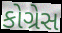
કોગ્રેસ